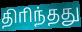
திரிந்தது